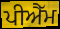
ਪੀਐੱਮ